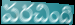
పరచింది